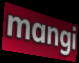
mangi